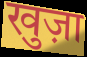
खुज़ा